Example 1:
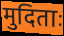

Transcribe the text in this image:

मुदिताः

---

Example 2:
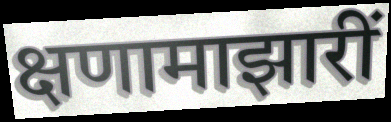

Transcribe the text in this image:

क्षणामाझारीं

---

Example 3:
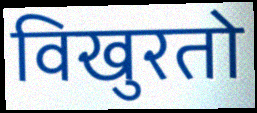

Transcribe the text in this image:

विखुरतो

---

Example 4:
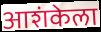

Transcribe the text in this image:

आशंकेला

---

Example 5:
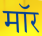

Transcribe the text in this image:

मॉर